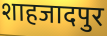
शाहजादपुर